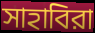
সাহাবিরা